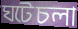
ঘটেচলা